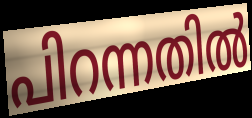
പിറന്നതിൽ